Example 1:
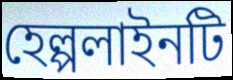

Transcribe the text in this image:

হেল্পলাইনটি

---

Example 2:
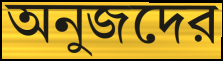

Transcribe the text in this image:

অনুজদের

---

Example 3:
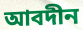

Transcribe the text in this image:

আবদীন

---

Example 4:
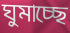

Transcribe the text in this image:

ঘুমাচ্ছে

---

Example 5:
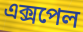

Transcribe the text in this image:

এক্সপেল